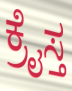
ಕ್ರೈಸ್ತ